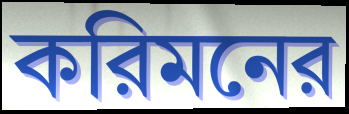
করিমনের